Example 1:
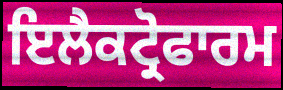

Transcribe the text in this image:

ਇਲੈਕਟ੍ਰੋਫਾਰਮ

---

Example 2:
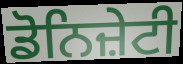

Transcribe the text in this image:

ਡੋਨਿਜ਼ੇਟੀ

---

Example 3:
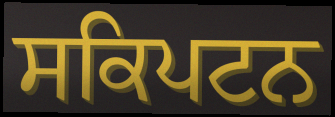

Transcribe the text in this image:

ਸਕਿਪਟਨ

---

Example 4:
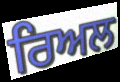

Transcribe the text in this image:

ਰਿਅਲ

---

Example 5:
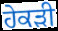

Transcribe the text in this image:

ਹੇਕੜੀ